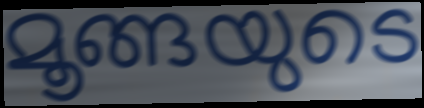
മൂങ്ങയുടെ